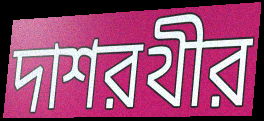
দাশরথীর